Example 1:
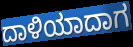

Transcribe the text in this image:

ದಾಳಿಯಾದಾಗ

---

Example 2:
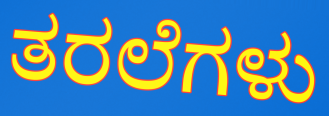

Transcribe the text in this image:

ತರಲೆಗಳು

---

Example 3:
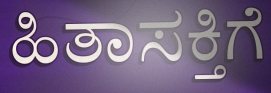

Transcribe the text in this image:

ಹಿತಾಸಕ್ತಿಗೆ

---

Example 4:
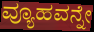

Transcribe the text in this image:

ವ್ಯೂಹವನ್ನೇ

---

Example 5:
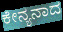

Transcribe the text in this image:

ಕೇನ್ಯನಾದ